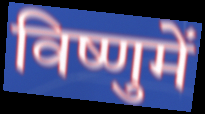
विष्णुमें